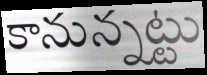
కానున్నట్టు